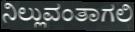
ನಿಲ್ಲುವಂತಾಗಲಿ